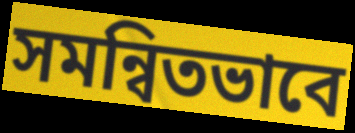
সমন্বিতভাবে